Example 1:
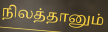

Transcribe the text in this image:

நிலத்தானும்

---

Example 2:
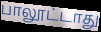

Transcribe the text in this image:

பாலூட்டாது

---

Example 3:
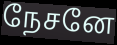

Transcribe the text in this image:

நேசனே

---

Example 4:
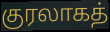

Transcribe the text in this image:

குரலாகத்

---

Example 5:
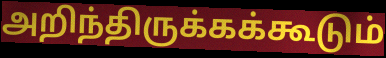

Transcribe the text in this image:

அறிந்திருக்கக்கூடும்